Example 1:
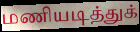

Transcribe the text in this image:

மணியடித்துக்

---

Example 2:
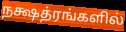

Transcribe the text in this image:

நக்ஷத்ரங்களில்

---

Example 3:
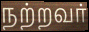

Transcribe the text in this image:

நற்றவர்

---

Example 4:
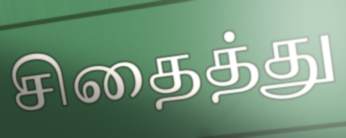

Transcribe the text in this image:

சிதைத்து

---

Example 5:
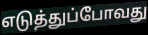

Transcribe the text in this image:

எடுத்துப்போவது